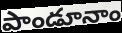
పాండూనాం